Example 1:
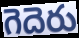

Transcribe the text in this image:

గెదెరు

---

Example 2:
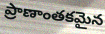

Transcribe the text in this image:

ప్రాణాంతకమైన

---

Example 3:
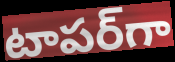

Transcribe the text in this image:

టాపర్‌గా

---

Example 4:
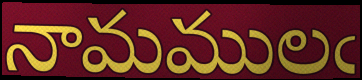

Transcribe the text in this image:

నామములఁ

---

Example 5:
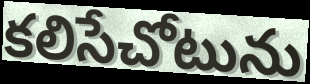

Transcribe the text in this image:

కలిసేచోటును